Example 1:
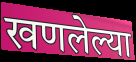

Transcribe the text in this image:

खणलेल्या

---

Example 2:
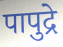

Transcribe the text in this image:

पापुद्रे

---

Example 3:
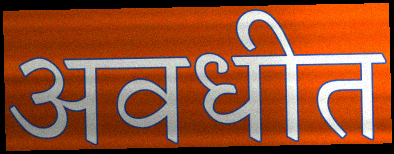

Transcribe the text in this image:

अवधीत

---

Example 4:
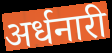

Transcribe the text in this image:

अर्धनारी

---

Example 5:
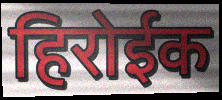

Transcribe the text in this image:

हिरोईक